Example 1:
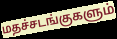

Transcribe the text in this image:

மதச்சடங்குகளும்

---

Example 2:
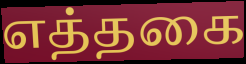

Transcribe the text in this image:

எத்தகை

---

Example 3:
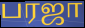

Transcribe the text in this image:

பரஜா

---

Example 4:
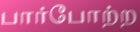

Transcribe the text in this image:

பார்போற்ற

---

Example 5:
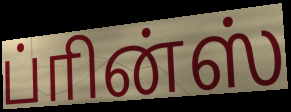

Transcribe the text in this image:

ப்ரின்ஸ்